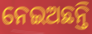
ନେଇଅଛନ୍ତି